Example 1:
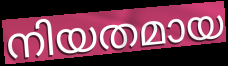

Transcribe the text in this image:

നിയതമായ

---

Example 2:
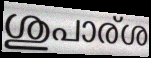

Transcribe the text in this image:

ശുപാര്ശ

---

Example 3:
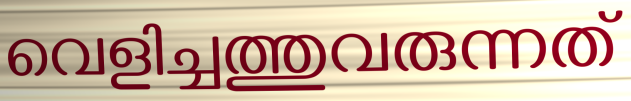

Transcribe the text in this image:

വെളിച്ചത്തുവരുന്നത്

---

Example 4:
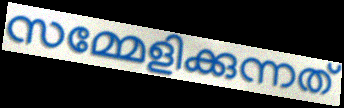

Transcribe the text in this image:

സമ്മേളിക്കുന്നത്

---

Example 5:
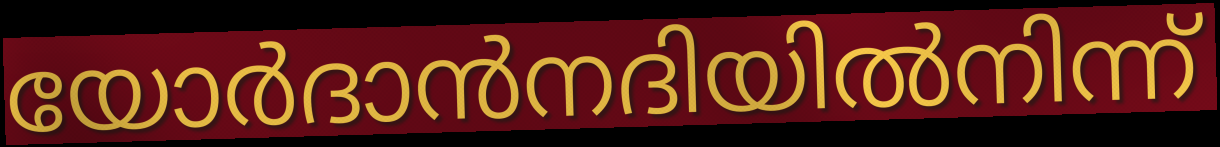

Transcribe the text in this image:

യോർദാൻനദിയിൽനിന്ന്